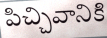
పిచ్చివానికి